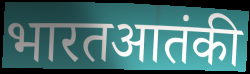
भारतआतंकी